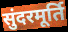
सुंदरमूर्ति